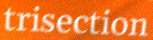
trisection